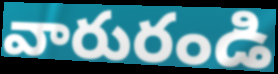
వారురండి